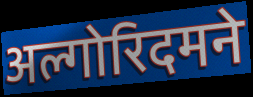
अल्गोरिदमने